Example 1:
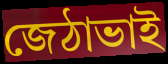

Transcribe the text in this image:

জেঠাভাই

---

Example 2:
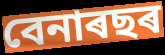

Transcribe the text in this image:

বেনাৰছৰ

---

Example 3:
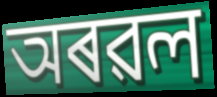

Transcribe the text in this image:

অৰৱল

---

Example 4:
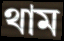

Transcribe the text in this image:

থাম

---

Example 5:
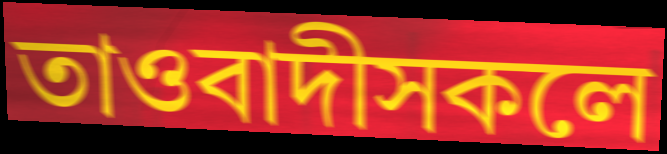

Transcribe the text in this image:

তাওবাদীসকলে